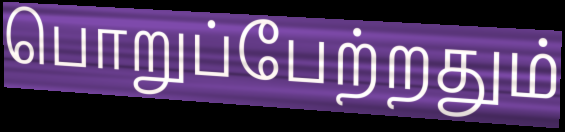
பொறுப்பேற்றதும்